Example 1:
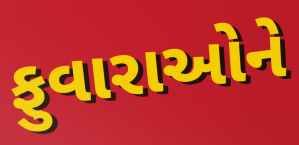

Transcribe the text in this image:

ફુવારાઓને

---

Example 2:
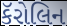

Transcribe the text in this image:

કૅરોલિન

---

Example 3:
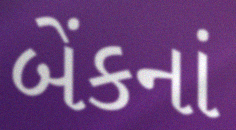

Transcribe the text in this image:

બેંકનાં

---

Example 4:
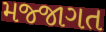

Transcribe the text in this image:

મજ્જાગત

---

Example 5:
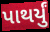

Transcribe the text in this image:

પાથર્યું